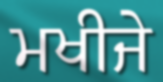
ਮਖੀਜੇ